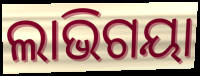
ଲାଭିଗୟା